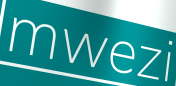
mwezi